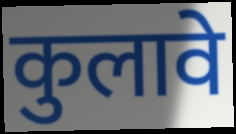
कुलावे